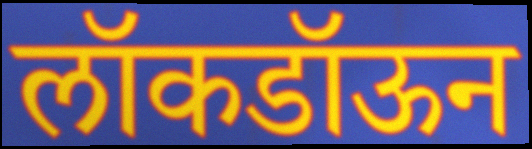
लॉकडॉऊन